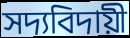
সদ্যবিদায়ী